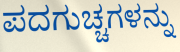
ಪದಗುಚ್ಚಗಳನ್ನು